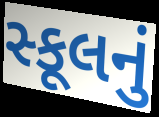
સ્કૂલનું